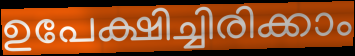
ഉപേക്ഷിച്ചിരിക്കാം